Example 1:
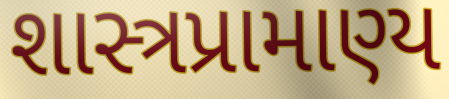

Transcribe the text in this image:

શાસ્ત્રપ્રામાણ્ય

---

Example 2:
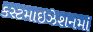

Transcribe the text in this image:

કસ્ટમાઇઝેશનમાં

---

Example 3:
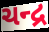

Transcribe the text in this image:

ચન્દ્ર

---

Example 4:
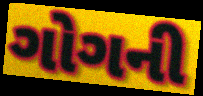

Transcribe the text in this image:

ગોગની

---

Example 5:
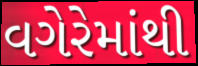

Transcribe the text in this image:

વગેરેમાંથી